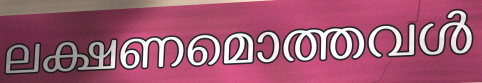
ലക്ഷണമൊത്തവൾ